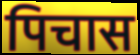
पिचास